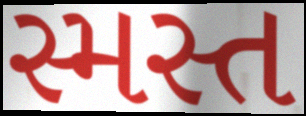
સ્મસ્ત